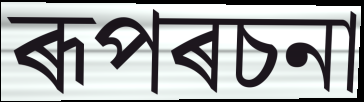
ৰূপৰচনা